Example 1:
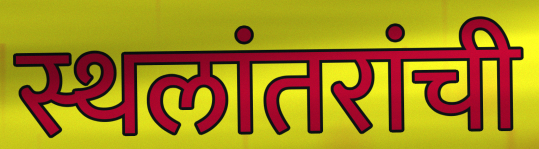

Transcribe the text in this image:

स्थलांतरांची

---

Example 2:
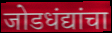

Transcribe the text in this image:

जोडधंद्यांचा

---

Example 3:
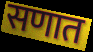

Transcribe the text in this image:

सणात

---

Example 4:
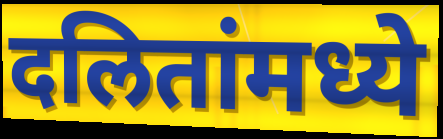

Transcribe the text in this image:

दलितांमध्ये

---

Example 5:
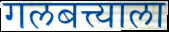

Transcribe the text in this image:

गलबत्त्याला